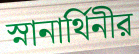
স্নানার্থিনীর